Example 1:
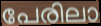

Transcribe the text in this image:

പേരിലാ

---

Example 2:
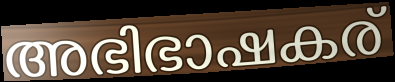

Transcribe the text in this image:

അഭിഭാഷകര്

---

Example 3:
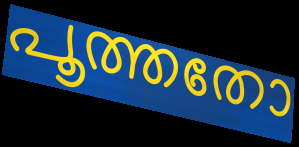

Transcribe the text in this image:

പൂത്തതോ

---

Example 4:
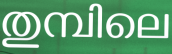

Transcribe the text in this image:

തുമ്പിലെ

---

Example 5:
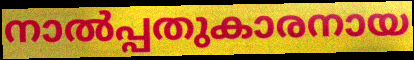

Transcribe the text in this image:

നാൽപ്പതുകാരനായ